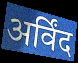
अर्विंद